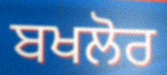
ਬਖਲੋਰ